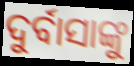
ଦୁର୍ବାସାଙ୍କୁ